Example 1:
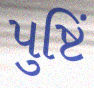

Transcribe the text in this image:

પુષ્ટિં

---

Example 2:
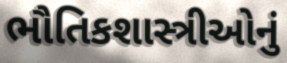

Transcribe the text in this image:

ભૌતિકશાસ્ત્રીઓનું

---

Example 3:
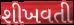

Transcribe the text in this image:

શીખવતી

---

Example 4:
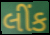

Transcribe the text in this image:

લીંક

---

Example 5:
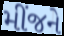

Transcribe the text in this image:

મીંજને